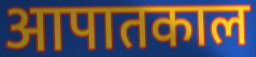
आपातकाल